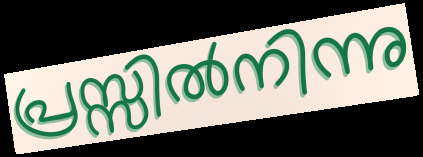
പ്രസ്സിൽനിന്നു